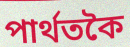
পাৰ্থতকৈ